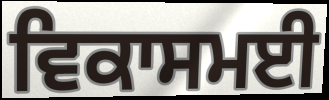
ਵਿਕਾਸਮਈ